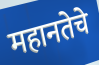
महानतेचे